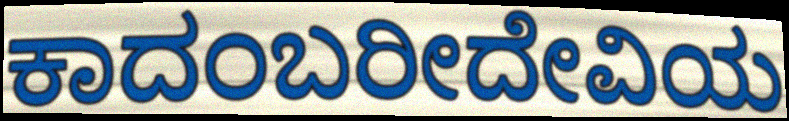
ಕಾದಂಬರೀದೇವಿಯ